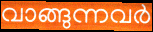
വാങ്ങുന്നവർ